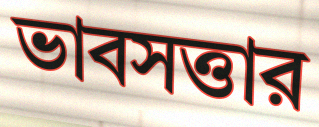
ভাবসত্তার